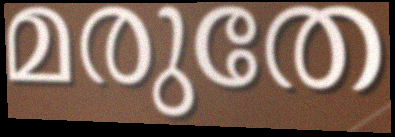
മരുതേ